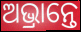
ଅଭ୍ରାନ୍ତେ